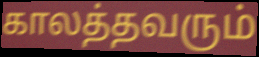
காலத்தவரும்